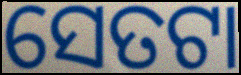
ସେତଟା